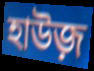
হাউজ়